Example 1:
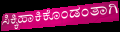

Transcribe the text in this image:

ಸಿಕ್ಕಿಹಾಕಿಕೊಂಡಂತಾಗಿ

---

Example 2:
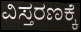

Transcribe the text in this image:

ವಿಸ್ತರಣಕ್ಕೆ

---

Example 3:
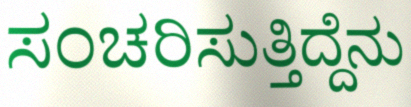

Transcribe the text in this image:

ಸಂಚರಿಸುತ್ತಿದ್ದೆನು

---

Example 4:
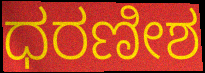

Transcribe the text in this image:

ಧರಣೀಶ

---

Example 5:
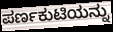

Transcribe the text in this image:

ಪರ್ಣಕುಟಿಯನ್ನು